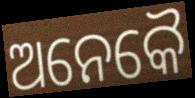
ଅନେକୈ